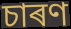
চাৰণ